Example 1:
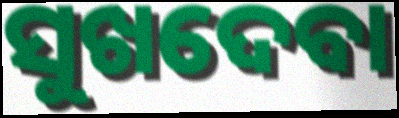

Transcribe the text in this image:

ସୁଖଦେବା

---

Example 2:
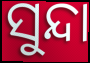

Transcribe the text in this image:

ସୁନ୍ଦା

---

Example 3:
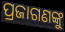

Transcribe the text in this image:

ପ୍ରଜାଗଣଙ୍କୁ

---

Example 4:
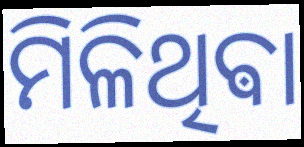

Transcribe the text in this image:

ମିଳିଥିଵା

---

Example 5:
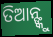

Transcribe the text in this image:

ତିଆନ୍ଙ୍କୁ